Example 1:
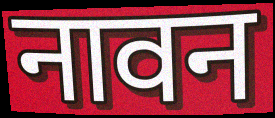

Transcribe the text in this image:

नावन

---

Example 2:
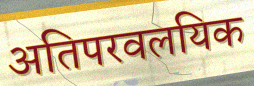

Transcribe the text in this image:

अतिपरवलयिक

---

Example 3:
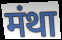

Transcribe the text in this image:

मंथा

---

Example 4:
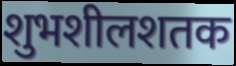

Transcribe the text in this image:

शुभशीलशतक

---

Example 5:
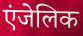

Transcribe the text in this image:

एंजेलिक